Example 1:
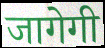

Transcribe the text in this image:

जागेगी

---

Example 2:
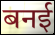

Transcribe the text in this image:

बनई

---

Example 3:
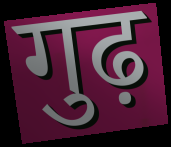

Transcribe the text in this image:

गुढ़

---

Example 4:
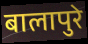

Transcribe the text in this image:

बालापुरे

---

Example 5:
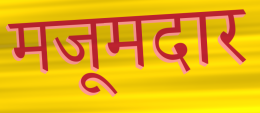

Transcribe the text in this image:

मजूमदार